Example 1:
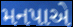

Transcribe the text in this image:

મનપાએ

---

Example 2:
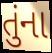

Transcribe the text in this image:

તુંના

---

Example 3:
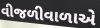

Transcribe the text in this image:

વીજળીવાળાએ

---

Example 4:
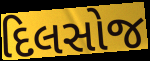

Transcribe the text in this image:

દિલસોજ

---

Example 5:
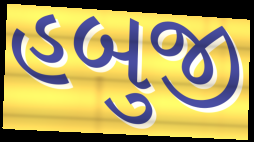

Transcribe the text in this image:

હબુજી